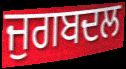
ਜੁਗਬਦਲ